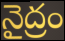
నైద్రం